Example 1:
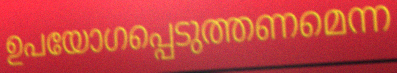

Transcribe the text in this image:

ഉപയോഗപ്പെടുത്തണമെന്ന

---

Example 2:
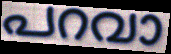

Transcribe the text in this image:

പറവാ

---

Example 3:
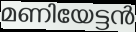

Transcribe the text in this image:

മണിയേട്ടൻ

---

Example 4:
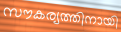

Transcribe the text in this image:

സൗകര്യത്തിനായി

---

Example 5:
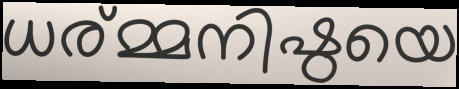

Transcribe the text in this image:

ധര്മ്മനിഷ്ഠയെ